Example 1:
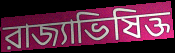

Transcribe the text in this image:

রাজ্যাভিষিক্ত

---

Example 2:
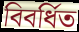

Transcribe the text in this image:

বিবর্ধিত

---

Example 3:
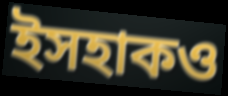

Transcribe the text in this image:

ইসহাকও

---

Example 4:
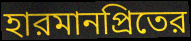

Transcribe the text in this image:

হারমানপ্রিতের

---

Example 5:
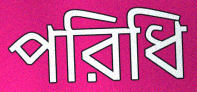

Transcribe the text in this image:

পরিধি